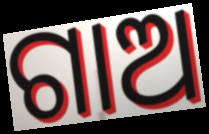
ଗାଅ